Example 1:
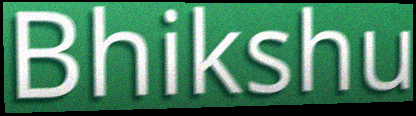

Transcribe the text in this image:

Bhikshu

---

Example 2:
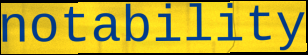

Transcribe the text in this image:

notability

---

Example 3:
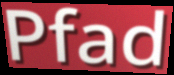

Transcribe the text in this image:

Pfad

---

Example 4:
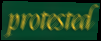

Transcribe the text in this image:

protested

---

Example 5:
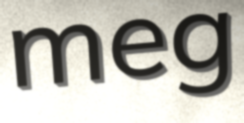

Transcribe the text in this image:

meg